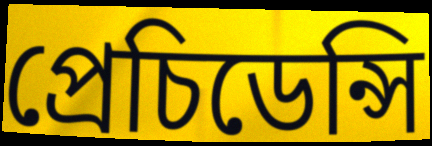
প্ৰেচিডেন্সি